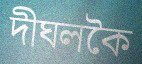
দীঘলকৈ